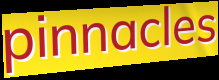
pinnacles